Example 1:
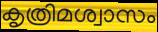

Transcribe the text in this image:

കൃത്രിമശ്വാസം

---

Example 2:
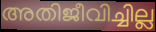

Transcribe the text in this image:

അതിജീവിച്ചില്ല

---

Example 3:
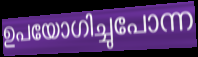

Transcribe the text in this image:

ഉപയോഗിച്ചുപോന്ന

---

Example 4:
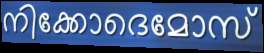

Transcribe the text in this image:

നിക്കോദെമോസ്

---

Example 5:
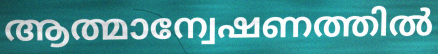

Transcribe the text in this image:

ആത്മാന്വേഷണത്തിൽ